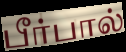
பீர்பால்